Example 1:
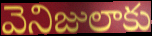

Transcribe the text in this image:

వెనిజులాకు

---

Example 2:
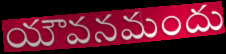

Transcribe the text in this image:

యౌవనమందు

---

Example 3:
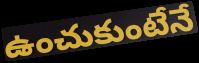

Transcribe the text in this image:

ఉంచుకుంటేనే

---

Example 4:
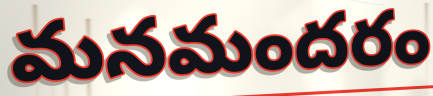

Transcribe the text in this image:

మనమందరం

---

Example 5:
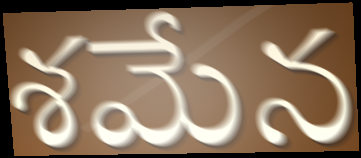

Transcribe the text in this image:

శమేన